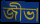
জীভা